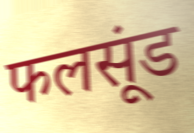
फलसूंड